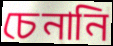
চেনানি